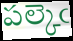
పల్కెఁ